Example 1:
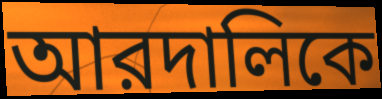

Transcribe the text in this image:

আরদালিকে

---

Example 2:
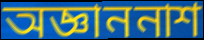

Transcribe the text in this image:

অজ্ঞাননাশ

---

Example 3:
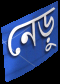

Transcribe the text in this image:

নেড়ু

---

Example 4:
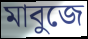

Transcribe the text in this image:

মাবুজে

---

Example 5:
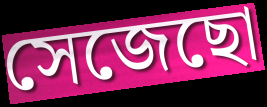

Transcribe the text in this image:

সেজেছো